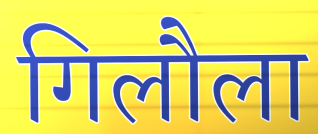
गिलौला